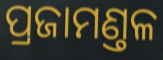
ପ୍ରଜାମଣ୍ତଳ